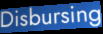
Disbursing